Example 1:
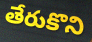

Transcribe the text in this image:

తేరుకొని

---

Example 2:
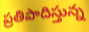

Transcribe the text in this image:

ప్రతిపాదిస్తున్న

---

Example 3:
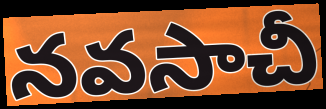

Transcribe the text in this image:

నవసాచీ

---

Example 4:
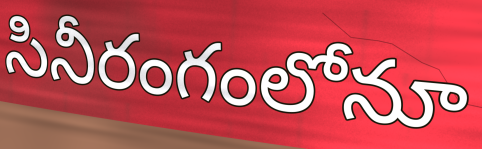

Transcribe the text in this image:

సినీరంగంలోనూ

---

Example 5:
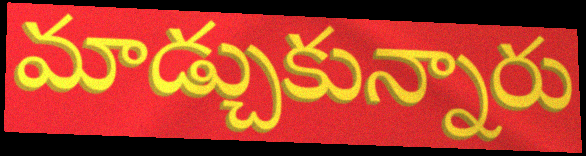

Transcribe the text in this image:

మాడ్చుకున్నారు